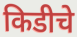
किडीचे